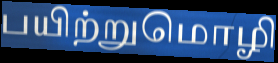
பயிற்றுமொழி